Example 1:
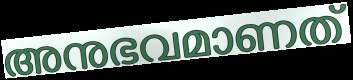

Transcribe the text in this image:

അനുഭവമാണത്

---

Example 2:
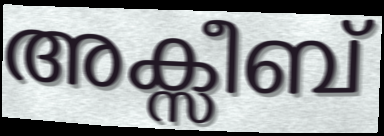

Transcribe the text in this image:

അക്സീബ്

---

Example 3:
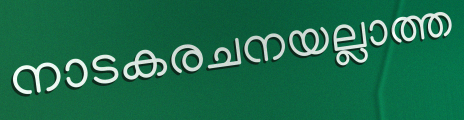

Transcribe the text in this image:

നാടകരചനയല്ലാത്ത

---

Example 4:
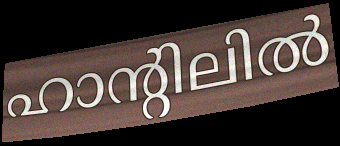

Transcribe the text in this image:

ഹാന്റിലിൽ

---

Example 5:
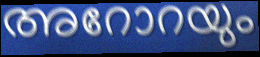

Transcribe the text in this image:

അറോറയും